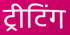
ट्रीटिंग